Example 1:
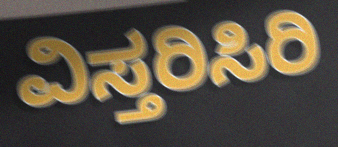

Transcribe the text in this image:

ವಿಸ್ತರಿಸಿರಿ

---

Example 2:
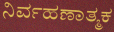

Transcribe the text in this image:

ನಿರ್ವಹಣಾತ್ಮಕ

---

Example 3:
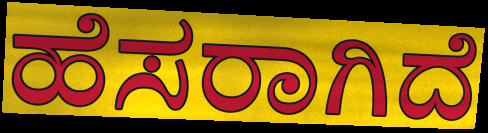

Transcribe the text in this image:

ಹೆಸರಾಗಿದೆ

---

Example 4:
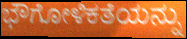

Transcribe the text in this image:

ಭೌಗೋಳಿಕತೆಯನ್ನು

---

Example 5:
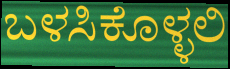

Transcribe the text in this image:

ಬಳಸಿಕೊಳ್ಳಲಿ